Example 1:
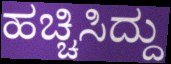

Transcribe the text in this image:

ಹಚ್ಚಿಸಿದ್ದು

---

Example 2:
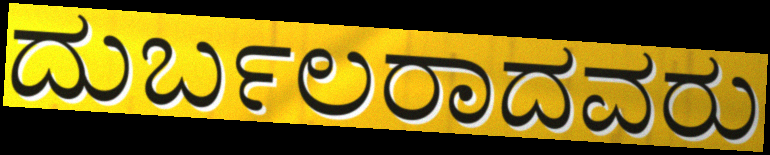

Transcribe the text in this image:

ದುರ್ಬಲರಾದವರು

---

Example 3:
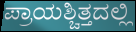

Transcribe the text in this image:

ಪ್ರಾಯಶ್ಚಿತ್ತದಲ್ಲಿ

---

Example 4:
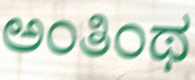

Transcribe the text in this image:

ಅಂತಿಂಥ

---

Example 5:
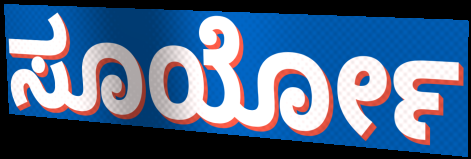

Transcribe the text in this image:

ಸೂರ್ಯೋ